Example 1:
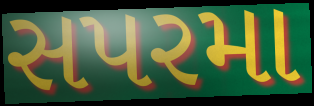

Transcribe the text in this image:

સપરમા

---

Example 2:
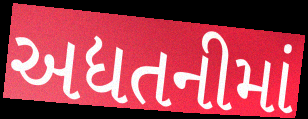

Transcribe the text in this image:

અદ્યતનીમાં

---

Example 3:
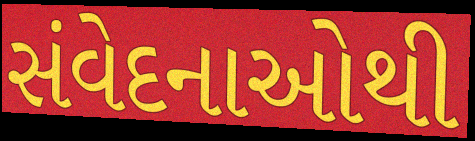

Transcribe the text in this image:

સંવેદનાઓથી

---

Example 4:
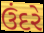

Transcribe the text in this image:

ઉંદરે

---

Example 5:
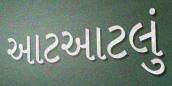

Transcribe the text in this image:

આટઆટલું